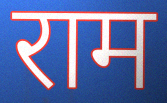
राम